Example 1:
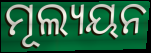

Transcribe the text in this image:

ମୂଲ୍ୟୟନ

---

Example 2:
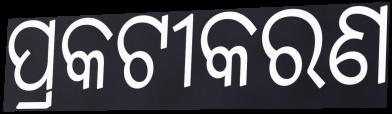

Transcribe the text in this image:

ପ୍ରକଟୀକରଣ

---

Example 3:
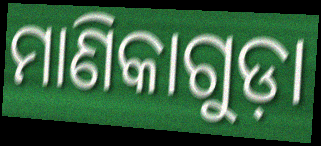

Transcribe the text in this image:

ମାଣିକାଗୁଡ଼ା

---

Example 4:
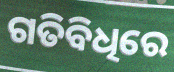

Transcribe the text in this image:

ଗତିବିଧିରେ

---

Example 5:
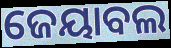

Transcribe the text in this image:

ଜେୟାବଲ